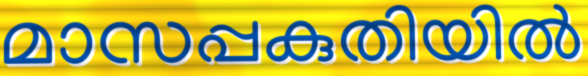
മാസപ്പകുതിയിൽ